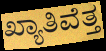
ಖ್ಯಾತಿವೆತ್ತ